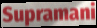
Supramani